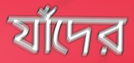
যাঁদের